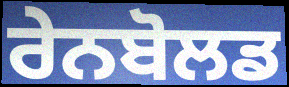
ਰੇਨਬੋਲਡ